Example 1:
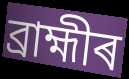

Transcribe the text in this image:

ব্ৰাহ্মীৰ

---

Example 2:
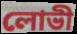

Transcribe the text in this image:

লোভী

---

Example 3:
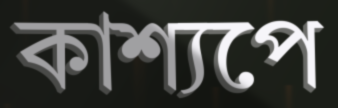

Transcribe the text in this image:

কাশ্যপে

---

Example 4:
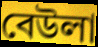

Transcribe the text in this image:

বেউলা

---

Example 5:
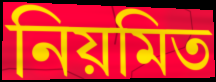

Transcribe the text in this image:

নিয়মিত